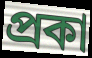
প্রকা